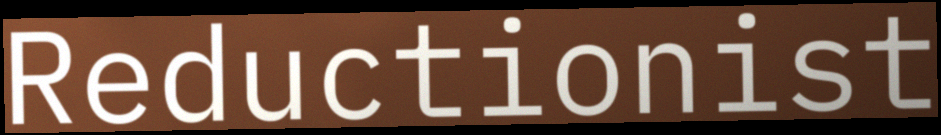
Reductionist